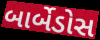
બાર્બેડોસ